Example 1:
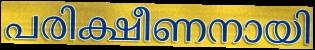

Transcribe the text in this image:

പരിക്ഷീണനായി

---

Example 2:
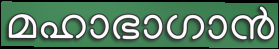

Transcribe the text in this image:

മഹാഭാഗാൻ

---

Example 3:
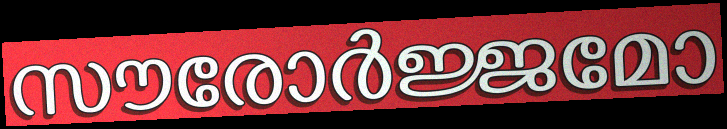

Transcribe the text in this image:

സൗരോർജ്ജമോ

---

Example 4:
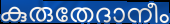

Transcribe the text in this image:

കുരുതേദാനീം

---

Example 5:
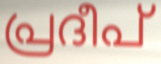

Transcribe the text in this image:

പ്രദീപ്